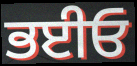
ਭਈਓ